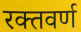
रक्तवर्ण